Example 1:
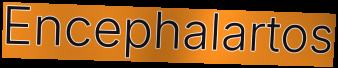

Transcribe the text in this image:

Encephalartos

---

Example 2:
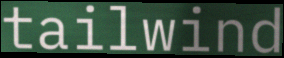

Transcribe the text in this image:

tailwind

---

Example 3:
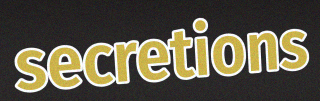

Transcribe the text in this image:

secretions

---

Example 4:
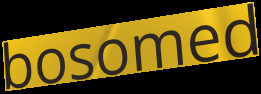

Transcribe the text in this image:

bosomed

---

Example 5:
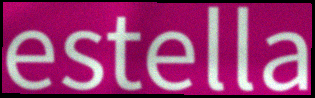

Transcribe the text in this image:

estella